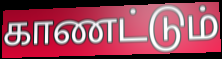
காணட்டும்